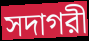
সদাগরী